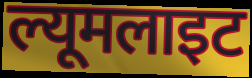
ल्यूमलाइट